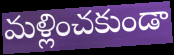
మళ్లించకుండా